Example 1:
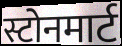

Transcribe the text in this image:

स्टोनमार्ट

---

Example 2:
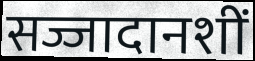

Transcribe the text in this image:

सज्जादानशीं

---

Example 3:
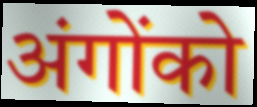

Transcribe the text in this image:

अंगोंको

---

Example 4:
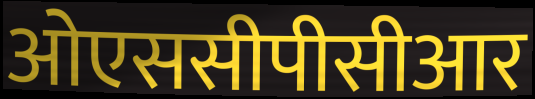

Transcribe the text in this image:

ओएससीपीसीआर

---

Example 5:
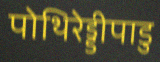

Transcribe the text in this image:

पोथिरेड्डीपाडु